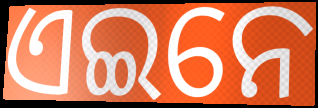
ଏଇନେ